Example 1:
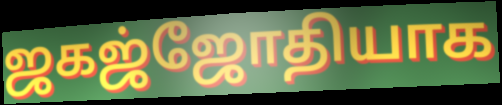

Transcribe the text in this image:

ஜகஜ்ஜோதியாக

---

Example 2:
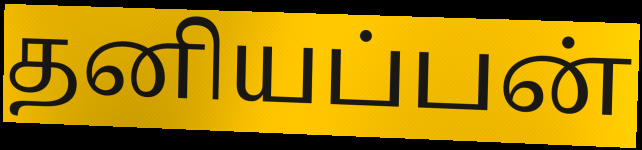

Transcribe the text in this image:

தனியப்பன்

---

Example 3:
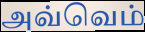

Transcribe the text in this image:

அவ்வெம்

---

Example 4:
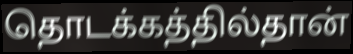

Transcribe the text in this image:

தொடக்கத்தில்தான்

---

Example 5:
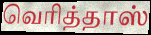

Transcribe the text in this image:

வெரித்தாஸ்